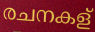
രചനകള്